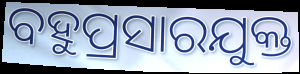
ବହୁପ୍ରସାରଯୁକ୍ତ